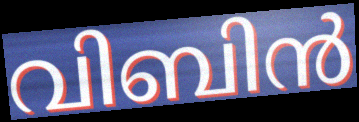
വിബിൻ